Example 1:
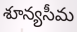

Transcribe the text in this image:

శూన్యసీమ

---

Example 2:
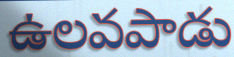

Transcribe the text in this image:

ఉలవపాడు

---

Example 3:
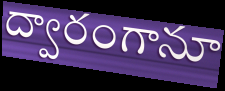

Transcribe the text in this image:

ద్వారంగానూ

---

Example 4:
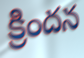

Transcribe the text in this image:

క్రిందన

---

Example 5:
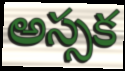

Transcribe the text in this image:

అస్సక